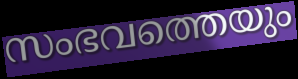
സംഭവത്തെയും